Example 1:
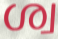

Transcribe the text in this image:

ശ്വ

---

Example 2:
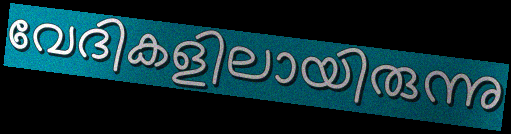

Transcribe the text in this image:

വേദികളിലായിരുന്നു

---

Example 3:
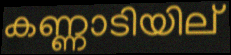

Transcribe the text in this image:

കണ്ണാടിയില്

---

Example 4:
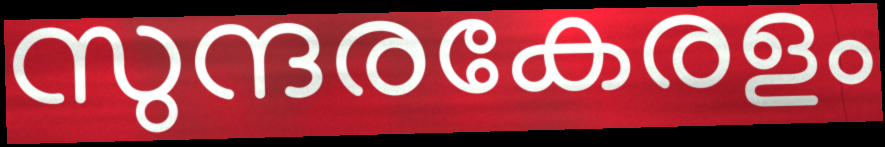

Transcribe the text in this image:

സുന്ദരകേരളം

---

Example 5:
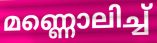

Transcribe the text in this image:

മണ്ണൊലിച്ച്